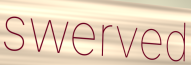
swerved